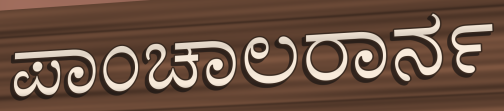
ಪಾಂಚಾಲರಾರ್ನ